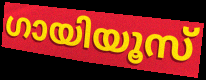
ഗായിയൂസ്